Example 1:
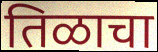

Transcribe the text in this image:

तिळाचा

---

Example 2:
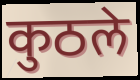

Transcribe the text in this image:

कुठले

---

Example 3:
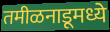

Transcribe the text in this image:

तमीळनाडूमध्ये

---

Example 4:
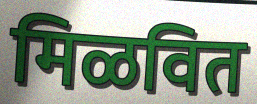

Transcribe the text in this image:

मिळवित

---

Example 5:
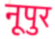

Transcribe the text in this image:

नूपुर